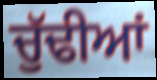
ਚੁੱਢੀਆਂ